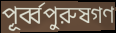
পূর্ব্বপুরুষগণ